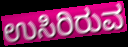
ಉಸಿರಿರುವ